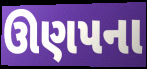
ઊણપના